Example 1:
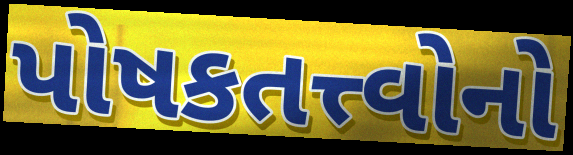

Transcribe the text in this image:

પોષકતત્ત્વોનો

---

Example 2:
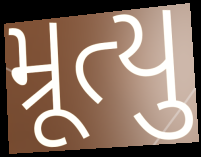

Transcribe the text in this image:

મ્રૂત્યુ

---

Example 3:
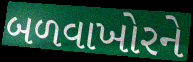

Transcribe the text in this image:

બળવાખોરને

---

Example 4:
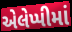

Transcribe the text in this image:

એલેપ્પીમાં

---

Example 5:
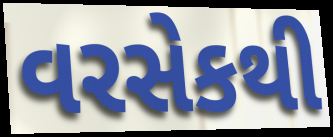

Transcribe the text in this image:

વરસેકથી